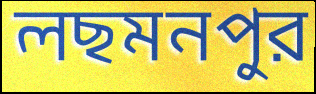
লছমনপুর